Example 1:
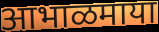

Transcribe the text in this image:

आभाळमाया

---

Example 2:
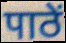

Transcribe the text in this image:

पाठें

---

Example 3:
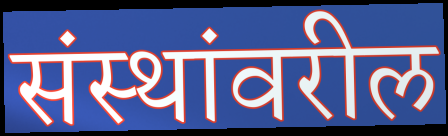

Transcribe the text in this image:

संस्थांवरील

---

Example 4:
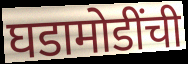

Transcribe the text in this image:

घडामोडींची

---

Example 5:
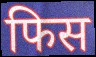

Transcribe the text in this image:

फिस